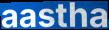
aastha